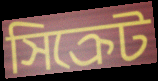
সিক্রেট